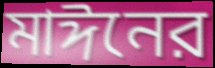
মাঈনের